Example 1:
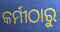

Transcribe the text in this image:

କର୍ମୀଠାରୁ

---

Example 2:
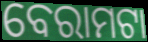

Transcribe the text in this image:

ବେରାମଟା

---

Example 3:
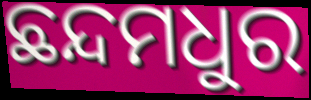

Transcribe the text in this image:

ଛନ୍ଦମଧୁର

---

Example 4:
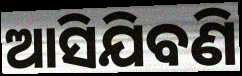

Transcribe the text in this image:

ଆସିଯିବଣି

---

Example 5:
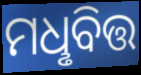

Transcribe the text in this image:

ମଧୢବିତ୍ତ